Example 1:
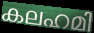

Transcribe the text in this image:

കലഹമി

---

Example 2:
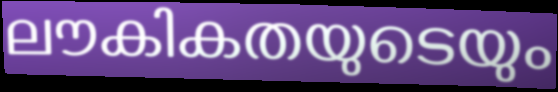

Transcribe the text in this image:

ലൗകികതയുടെയും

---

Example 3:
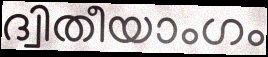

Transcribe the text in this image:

ദ്വിതീയാംഗം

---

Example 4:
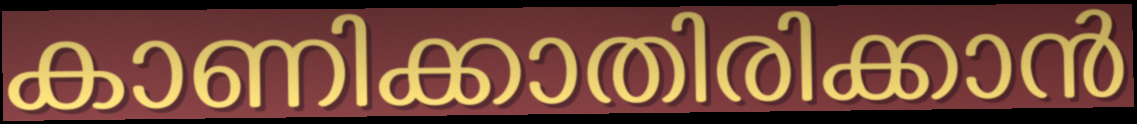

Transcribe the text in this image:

കാണിക്കാതിരിക്കാൻ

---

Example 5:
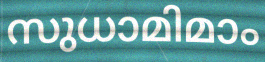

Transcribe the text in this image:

സുധാമിമാം